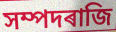
সম্পদৰাজি